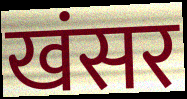
खंसर